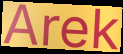
Arek